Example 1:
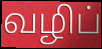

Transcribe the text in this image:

வழிப்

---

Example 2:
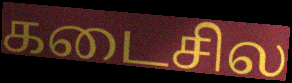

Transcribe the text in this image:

கடைசில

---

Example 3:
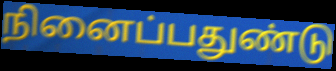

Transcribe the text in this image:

நினைப்பதுண்டு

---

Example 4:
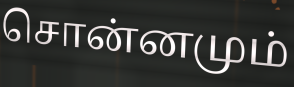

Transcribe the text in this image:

சொன்னமும்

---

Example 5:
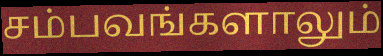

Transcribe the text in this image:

சம்பவங்களாலும்